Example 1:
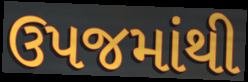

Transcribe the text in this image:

ઉપજમાંથી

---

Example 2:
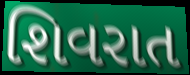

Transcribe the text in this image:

શિવરાત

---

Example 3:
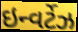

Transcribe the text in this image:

ઇન્વર્ટેઝ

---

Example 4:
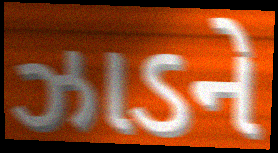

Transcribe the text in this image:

ઝાડને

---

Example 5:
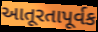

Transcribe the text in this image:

આતૂરતાપૂર્વક